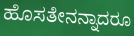
ಹೊಸತೇನನ್ನಾದರೂ